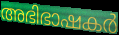
അഭിഭാഷകർ